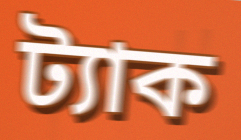
ট্যাক